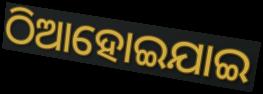
ଠିଆହୋଇଯାଇ